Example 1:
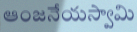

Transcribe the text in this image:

ఆంజనేయస్వామి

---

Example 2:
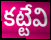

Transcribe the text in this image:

కట్టేవి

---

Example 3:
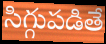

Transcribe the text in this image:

సిగ్గుపడితే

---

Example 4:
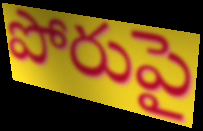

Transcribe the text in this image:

పోరుపై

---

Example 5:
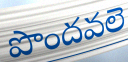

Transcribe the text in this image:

పొందవలె